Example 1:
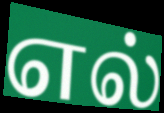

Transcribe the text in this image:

எல்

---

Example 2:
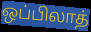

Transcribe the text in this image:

ஒப்பிலாத்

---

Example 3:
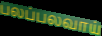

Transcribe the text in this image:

பலப்பலவாய்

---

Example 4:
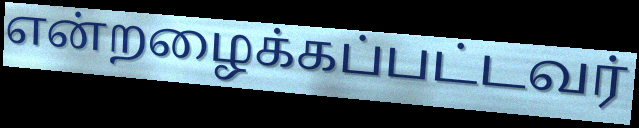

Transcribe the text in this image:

என்றழைக்கப்பட்டவர்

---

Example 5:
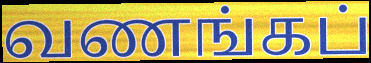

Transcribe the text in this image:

வணங்கப்